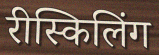
रीस्किलिंग